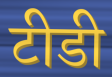
टीडी